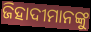
ଜିହାଦୀମାନଙ୍କୁ